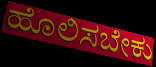
ಹೊಲಿಸಬೇಕು